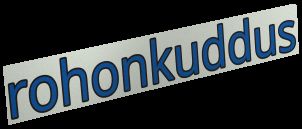
rohonkuddus